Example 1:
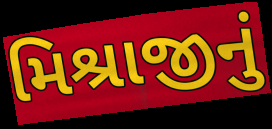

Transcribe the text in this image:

મિશ્રાજીનું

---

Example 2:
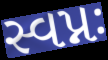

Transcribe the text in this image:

સ્વપ્નઃ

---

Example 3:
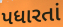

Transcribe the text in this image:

પધારતાં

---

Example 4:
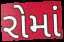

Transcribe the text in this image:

રોમાં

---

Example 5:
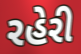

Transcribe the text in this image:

રહેરી